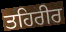
ਤਹਿਰੀਰ